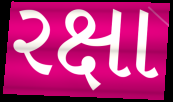
રક્ષા